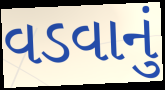
વડવાનું